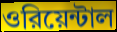
ওরিয়েন্টাল